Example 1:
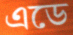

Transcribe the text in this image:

এডে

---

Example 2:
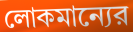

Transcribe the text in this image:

লোকমান্যের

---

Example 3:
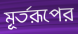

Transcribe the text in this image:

মূর্তরূপের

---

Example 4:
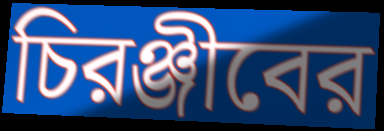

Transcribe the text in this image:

চিরঞ্জীবের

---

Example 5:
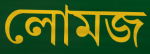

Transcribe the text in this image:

লোমজ